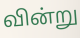
வின்று